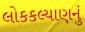
લોકકલ્યાણનું